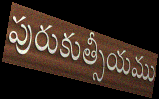
పురుకుత్సీయము